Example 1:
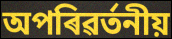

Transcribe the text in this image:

অপৰিৱৰ্তনীয়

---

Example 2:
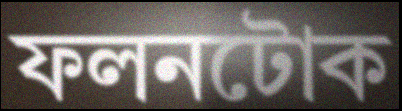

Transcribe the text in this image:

ফলনটোক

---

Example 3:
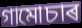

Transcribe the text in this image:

গামোচাৰ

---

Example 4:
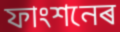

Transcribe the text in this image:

ফাংশনেৰ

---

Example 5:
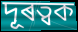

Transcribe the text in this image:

দূৰত্বক